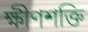
ক্ষীণশক্তি